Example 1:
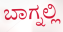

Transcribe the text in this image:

ಬಾಗ್ನಲ್ಲಿ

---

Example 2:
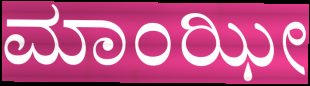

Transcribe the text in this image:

ಮಾಂಝೀ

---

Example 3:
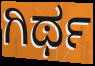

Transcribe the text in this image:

ಗಿರ್ಥ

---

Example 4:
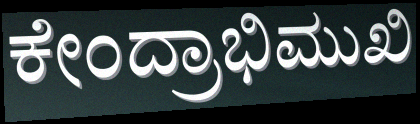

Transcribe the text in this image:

ಕೇಂದ್ರಾಭಿಮುಖಿ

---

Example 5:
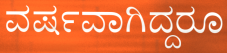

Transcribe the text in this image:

ವರ್ಷವಾಗಿದ್ದರೂ